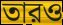
তারও